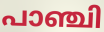
പാഞ്ചി